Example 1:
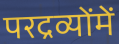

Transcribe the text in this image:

परद्रव्योंमें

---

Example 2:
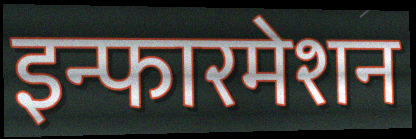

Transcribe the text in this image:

इन्फारमेशन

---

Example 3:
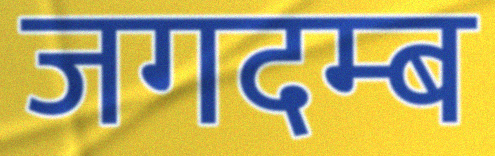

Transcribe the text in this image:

जगदम्ब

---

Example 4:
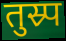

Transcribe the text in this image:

तुस्र्प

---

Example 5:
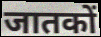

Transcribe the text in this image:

जातकों